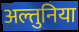
अल्तुनिया